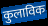
कुलाविक